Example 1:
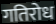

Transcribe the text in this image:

गतिरोध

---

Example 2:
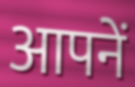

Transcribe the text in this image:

आपनें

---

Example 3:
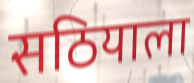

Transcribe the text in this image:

सठियाला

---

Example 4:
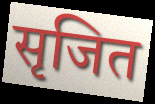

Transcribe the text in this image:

सृजित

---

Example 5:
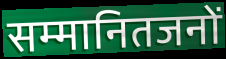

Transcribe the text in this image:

सम्मानितजनों